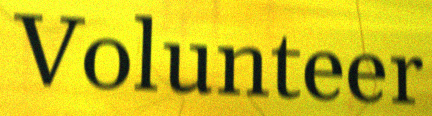
Volunteer